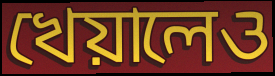
খেয়ালেও